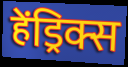
हेंड्रिक्स